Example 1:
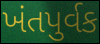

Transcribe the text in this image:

ખંતપુર્વક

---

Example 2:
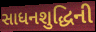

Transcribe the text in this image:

સાધનશુદ્ધિની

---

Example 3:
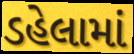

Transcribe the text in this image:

ડહેલામાં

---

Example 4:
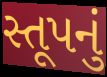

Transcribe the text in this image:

સ્તૂપનું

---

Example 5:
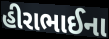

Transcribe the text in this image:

હીરાભાઈના